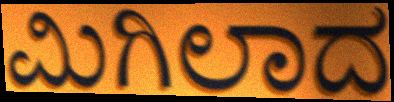
ಮಿಗಿಲಾದ